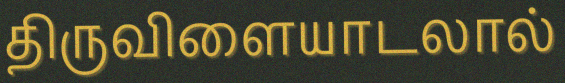
திருவிளையாடலால்